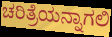
ಚರಿತ್ರೆಯನ್ನಾಗಲಿ